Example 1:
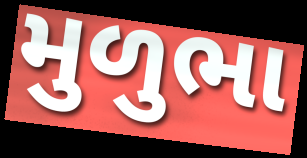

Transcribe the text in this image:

મુળુભા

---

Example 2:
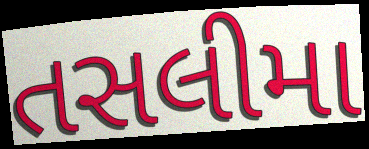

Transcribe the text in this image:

તસલીમા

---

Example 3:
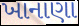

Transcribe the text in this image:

ખાનાણા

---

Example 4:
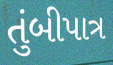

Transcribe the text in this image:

તુંબીપાત્ર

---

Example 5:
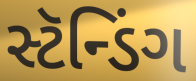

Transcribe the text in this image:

સ્ટૅન્ડિંગ